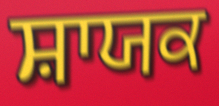
ਸ਼ਾਯਕ